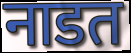
नाडत